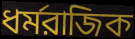
ধর্মরাজিক